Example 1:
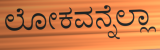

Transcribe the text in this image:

ಲೋಕವನ್ನೆಲ್ಲಾ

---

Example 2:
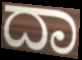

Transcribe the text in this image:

ದಾ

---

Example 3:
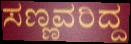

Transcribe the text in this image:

ಸಣ್ಣವರಿದ್ದ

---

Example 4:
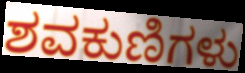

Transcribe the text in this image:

ಶವಕುಣಿಗಳು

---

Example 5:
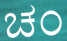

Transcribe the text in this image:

ಚಂ